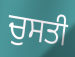
ਚੁਸਤੀ